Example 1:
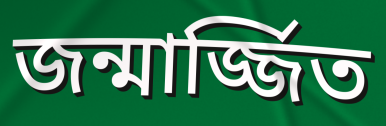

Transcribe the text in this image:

জন্মার্জ্জিত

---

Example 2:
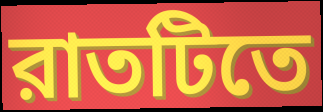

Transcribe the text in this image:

রাতটিতে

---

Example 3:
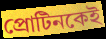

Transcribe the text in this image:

প্রোটিনকেই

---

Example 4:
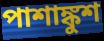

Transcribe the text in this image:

পাশাঙ্কুশ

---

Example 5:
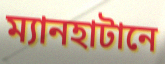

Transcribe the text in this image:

ম্যানহাটানে